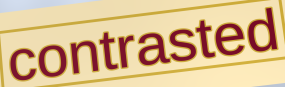
contrasted